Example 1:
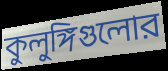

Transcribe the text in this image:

কুলুঙ্গিগুলোর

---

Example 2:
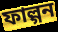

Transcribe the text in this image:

ফাল্গন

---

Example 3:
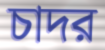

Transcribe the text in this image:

চাদর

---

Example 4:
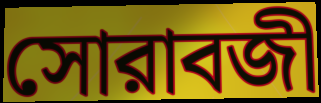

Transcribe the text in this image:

সোরাবজী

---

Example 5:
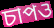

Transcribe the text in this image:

চাপও